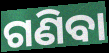
ଗଣିବା